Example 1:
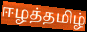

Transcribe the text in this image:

ஈழத்தமிழ்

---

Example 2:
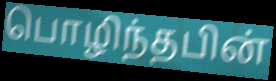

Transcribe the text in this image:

பொழிந்தபின்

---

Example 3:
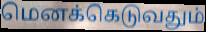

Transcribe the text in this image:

மெனக்கெடுவதும்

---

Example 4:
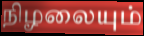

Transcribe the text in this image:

நிழலையும்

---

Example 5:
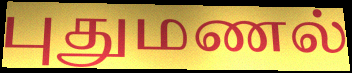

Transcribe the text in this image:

புதுமணல்